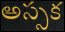
అస్సక